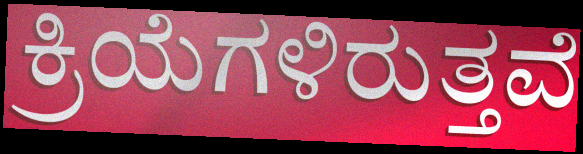
ಕ್ರಿಯೆಗಳಿರುತ್ತವೆ